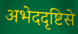
अभेददृष्टिसे